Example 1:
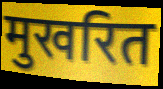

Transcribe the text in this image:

मुखरित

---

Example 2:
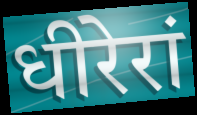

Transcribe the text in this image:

धीरेरां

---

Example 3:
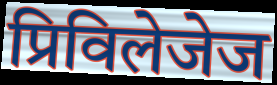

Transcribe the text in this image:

प्रिविलेजेज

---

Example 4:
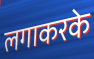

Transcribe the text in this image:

लगाकरके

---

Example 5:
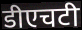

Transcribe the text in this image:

डीएचटी